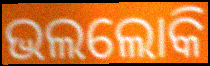
ଭଲଲୋକି